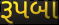
રૂપબા